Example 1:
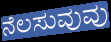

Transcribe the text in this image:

ನೆಲಸುವುವು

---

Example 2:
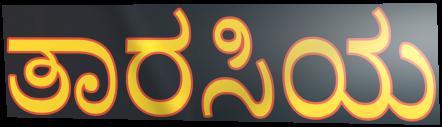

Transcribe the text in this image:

ತಾರಸಿಯ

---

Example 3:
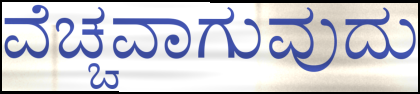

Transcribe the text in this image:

ವೆಚ್ಚವಾಗುವುದು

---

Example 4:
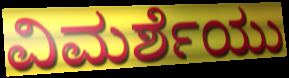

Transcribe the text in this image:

ವಿಮರ್ಶೆಯು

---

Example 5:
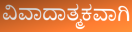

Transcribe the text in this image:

ವಿವಾದಾತ್ಮಕವಾಗಿ